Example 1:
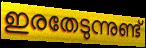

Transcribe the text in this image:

ഇരതേടുന്നുണ്ട്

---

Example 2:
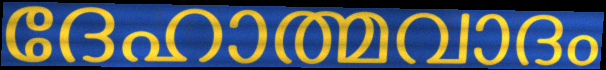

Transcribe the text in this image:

ദേഹാത്മവാദം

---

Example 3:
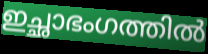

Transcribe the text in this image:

ഇച്ഛാഭംഗത്തിൽ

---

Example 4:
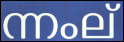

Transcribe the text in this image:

ന്നംല്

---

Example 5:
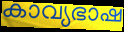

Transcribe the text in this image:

കാവ്യഭാഷ